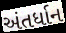
અંતર્ધાન